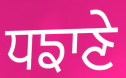
ਧਙਾਣੇ